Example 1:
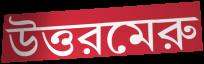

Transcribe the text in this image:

উত্তরমেরু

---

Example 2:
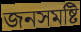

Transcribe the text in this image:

জনসমষ্টি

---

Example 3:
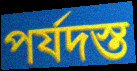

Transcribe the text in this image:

পর্যদস্ত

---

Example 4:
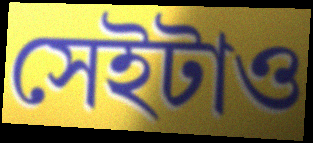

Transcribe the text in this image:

সেইটাও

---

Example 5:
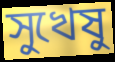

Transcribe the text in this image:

সুখেষু